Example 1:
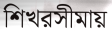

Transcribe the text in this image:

শিখরসীমায়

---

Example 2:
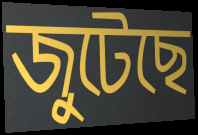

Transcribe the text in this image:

জুটেছে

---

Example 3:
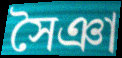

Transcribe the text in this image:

সৈঞা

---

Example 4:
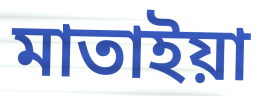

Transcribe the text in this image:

মাতাইয়া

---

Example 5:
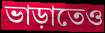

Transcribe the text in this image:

ভাড়াতেও